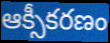
ఆక్సీకరణం